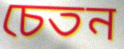
চেতন